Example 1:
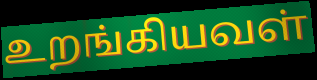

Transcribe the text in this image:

உறங்கியவள்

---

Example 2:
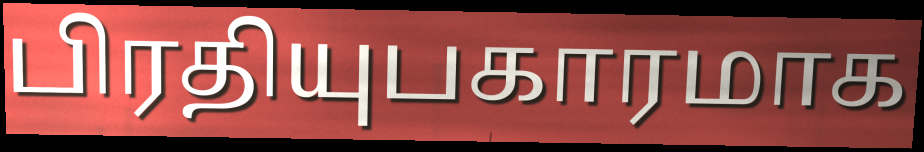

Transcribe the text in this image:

பிரதியுபகாரமாக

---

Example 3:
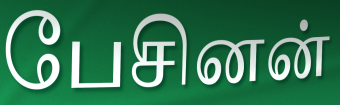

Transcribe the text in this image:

பேசினன்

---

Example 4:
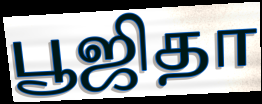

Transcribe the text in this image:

பூஜிதா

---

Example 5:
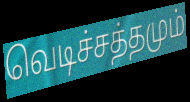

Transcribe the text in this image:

வெடிச்சத்தமும்